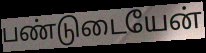
பண்டுடையேன்